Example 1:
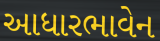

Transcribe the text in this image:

આધારભાવેન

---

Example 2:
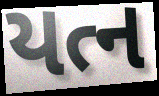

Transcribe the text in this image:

યત્ન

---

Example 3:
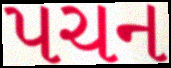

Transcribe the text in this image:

પચન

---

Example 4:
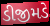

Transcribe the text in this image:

ડીજીમડે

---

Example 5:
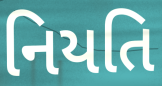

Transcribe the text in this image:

નિયતિ